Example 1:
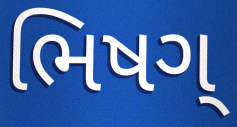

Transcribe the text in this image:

ભિષગ્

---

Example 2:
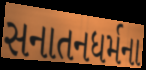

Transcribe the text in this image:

સનાતનધર્મના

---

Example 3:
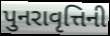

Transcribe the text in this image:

પુનરાવૃત્તિની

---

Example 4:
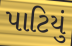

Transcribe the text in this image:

પાટિયું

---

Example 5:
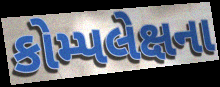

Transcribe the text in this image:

કોમ્પલેક્ષના